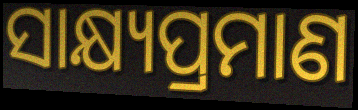
ସାକ୍ଷ୍ୟପ୍ରମାଣ